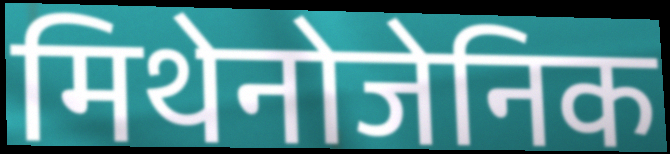
मिथेनोजेनिक